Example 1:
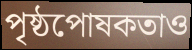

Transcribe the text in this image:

পৃষ্ঠপোষকতাও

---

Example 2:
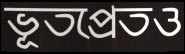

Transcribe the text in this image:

ভূতপ্রেতও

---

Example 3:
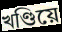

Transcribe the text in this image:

খণ্ডিয়ে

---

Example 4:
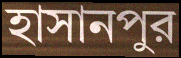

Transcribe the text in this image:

হাসানপুর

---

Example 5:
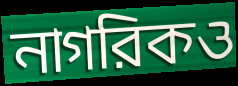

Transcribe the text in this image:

নাগরিকও